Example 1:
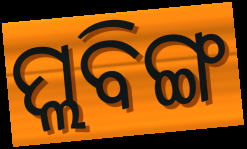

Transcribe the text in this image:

ପ୍ଲବିଙ୍ଗ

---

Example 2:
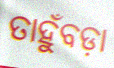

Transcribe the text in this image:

ତାହୁଁବଡ଼ା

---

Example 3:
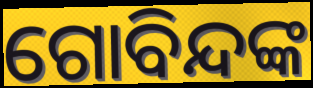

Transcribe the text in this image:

ଗୋବିନ୍ଦଙ୍କ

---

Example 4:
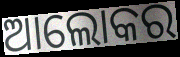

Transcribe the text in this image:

ଆଲୋକର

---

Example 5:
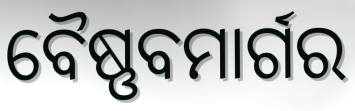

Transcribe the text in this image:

ବୈଷ୍ଣବମାର୍ଗର